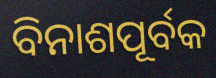
ବିନାଶପୂର୍ବକ